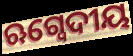
ଋଗ୍ବେଦୀୟ